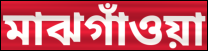
মাঝগাঁওয়া